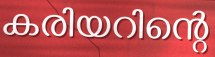
കരിയറിന്റെ